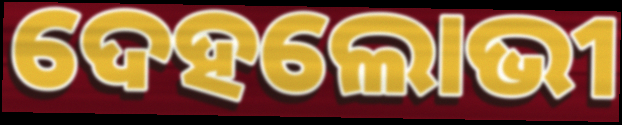
ଦେହଲୋଭୀ